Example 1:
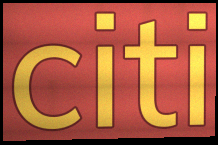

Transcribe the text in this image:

citi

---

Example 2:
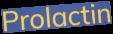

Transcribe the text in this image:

Prolactin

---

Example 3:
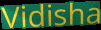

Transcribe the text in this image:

Vidisha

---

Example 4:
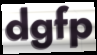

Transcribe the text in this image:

dgfp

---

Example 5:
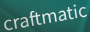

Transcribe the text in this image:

craftmatic